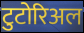
टुटोरिअल